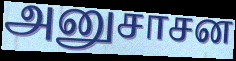
அனுசாசன